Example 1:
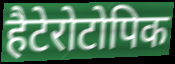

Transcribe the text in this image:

हैटेरोटोपिक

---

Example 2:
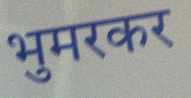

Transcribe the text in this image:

भुमरकर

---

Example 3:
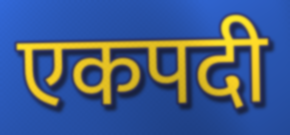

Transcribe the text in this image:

एकपदी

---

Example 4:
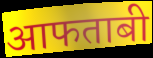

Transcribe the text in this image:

आफताबी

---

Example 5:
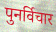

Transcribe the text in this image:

पुनर्विचार